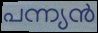
പന്ന്യൻ